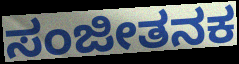
ಸಂಜೀತನಕ